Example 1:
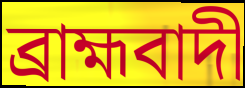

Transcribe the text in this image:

ব্রাহ্মবাদী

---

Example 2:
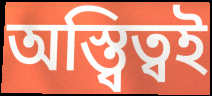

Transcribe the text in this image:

অস্ত্বিত্বই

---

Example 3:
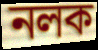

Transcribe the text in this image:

নলক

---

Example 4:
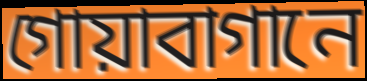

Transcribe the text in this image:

গোয়াবাগানে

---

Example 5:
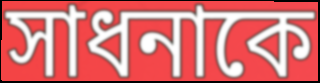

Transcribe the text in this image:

সাধনাকে